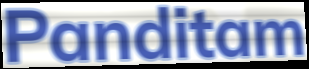
Panditam